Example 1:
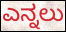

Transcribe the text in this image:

ಎನ್ನಲು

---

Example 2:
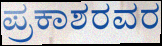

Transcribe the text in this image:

ಪ್ರಕಾಶರವರ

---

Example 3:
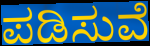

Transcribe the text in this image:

ಪಡಿಸುವೆ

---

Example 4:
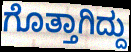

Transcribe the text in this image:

ಗೊತ್ತಾಗಿದ್ದು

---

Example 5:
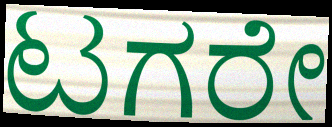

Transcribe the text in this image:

ಟಗರೇ